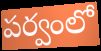
పర్వంలో